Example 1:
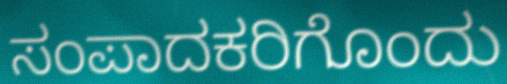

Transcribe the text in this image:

ಸಂಪಾದಕರಿಗೊಂದು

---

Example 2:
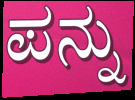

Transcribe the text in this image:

ಪನ್ನು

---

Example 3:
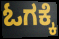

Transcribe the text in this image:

ಓಗಕ್ಕೆ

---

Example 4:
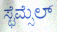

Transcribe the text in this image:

ಸ್ಟೆಮ್ಸೆಲ್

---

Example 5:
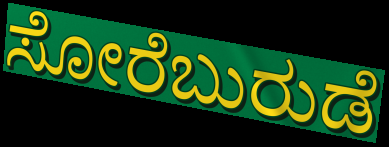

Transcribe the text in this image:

ಸೋರೆಬುರುಡೆ